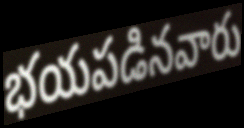
భయపడినవారు